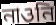
নাওনি